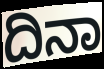
ದಿನಾ